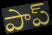
పాప్